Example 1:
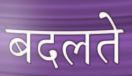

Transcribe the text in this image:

बदलते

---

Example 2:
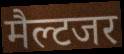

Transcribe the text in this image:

मैल्टजर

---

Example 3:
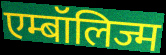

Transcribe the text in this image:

एम्बॉलिज्म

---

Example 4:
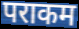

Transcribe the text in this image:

पराकम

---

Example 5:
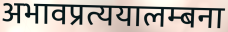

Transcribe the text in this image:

अभावप्रत्ययालम्बना